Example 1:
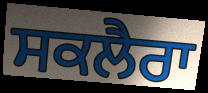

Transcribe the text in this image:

ਸਕਲੈਰਾ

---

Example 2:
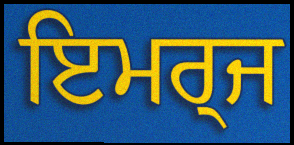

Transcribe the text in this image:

ਇਮਰ੍ਜ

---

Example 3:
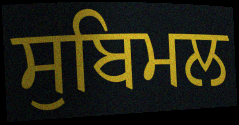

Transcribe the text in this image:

ਸੁਬਿਮਲ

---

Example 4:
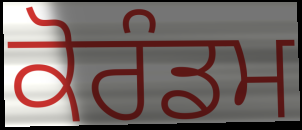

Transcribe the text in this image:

ਕੋਰੰਡਮ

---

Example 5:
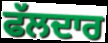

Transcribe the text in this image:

ਫੱਲਦਾਰ